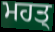
ਮਹਤ੍